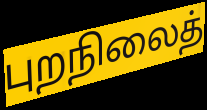
புறநிலைத்